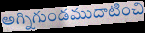
అగ్నిగుండముదాటించి